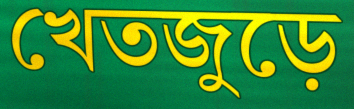
খেতজুড়ে